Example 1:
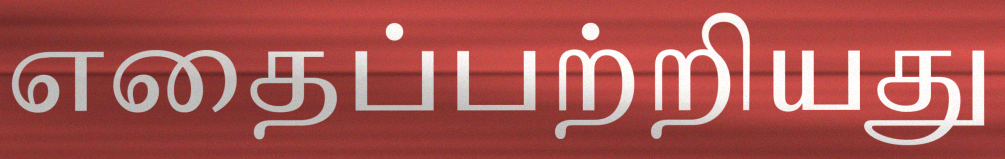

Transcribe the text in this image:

எதைப்பற்றியது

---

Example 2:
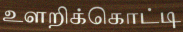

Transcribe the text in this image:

உளறிக்கொட்டி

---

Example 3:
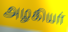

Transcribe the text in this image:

அழகியர்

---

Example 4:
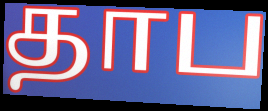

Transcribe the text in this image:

தாப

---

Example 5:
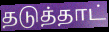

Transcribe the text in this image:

தடுத்தாட்